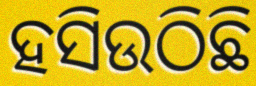
ହସିଉଠିଛି